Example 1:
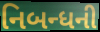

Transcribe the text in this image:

નિબન્ધની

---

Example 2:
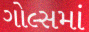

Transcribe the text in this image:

ગોલ્સમાં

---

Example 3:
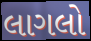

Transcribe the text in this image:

લાગલો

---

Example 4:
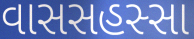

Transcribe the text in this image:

વાસસહસ્સા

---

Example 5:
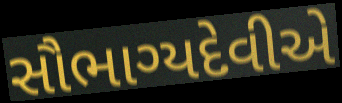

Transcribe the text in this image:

સૌભાગ્યદેવીએ